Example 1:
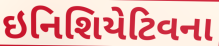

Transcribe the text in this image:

ઇનિશિયેટિવના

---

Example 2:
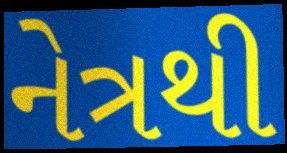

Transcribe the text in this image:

નેત્રથી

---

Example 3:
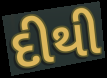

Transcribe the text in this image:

દીથી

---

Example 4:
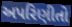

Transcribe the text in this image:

અપરિણીતો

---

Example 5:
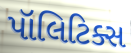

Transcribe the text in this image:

પૉલિટિક્સ